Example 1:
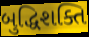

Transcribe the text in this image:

બુદ્ધિશક્તિ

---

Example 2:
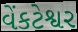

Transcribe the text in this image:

વેંકટેશ્વર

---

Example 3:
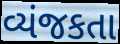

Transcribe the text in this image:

વ્યંજકતા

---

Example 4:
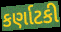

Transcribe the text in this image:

કર્ણાટકી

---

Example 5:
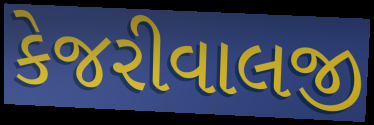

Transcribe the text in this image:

કેજરીવાલજી